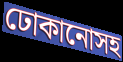
ঢোকানোসহ